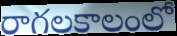
రాగలకాలంలో